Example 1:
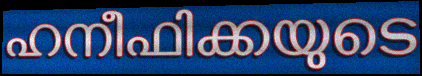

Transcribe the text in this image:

ഹനീഫിക്കയുടെ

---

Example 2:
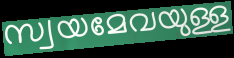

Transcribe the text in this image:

സ്വയമേവയുള്ള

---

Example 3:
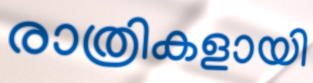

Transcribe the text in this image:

രാത്രികളായി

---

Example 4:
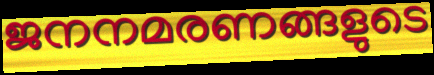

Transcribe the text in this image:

ജനനമരണങ്ങളുടെ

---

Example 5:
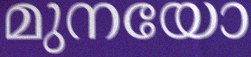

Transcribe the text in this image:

മുനയോ